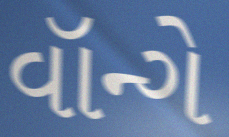
વૉન્ગે